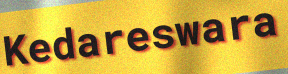
Kedareswara